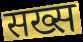
सख्स